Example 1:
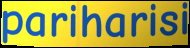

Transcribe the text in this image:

pariharisi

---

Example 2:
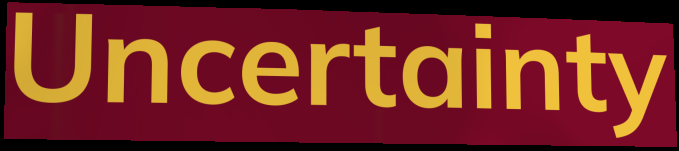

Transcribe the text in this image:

Uncertainty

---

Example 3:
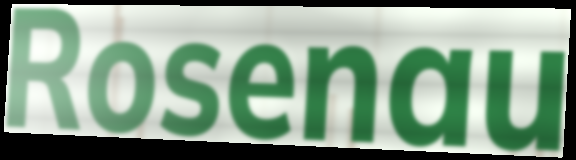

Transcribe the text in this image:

Rosenau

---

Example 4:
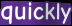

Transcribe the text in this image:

quickly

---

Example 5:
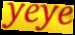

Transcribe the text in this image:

yeye